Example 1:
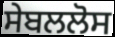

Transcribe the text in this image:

ਸੇਬਲਲੋਸ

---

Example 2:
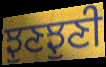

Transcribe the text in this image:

ਝੁਣਝੁਣੀ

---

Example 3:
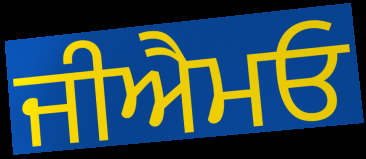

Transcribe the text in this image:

ਜੀਐਮਓ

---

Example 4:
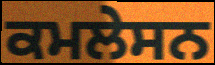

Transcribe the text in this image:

ਕਮਲੇਸਨ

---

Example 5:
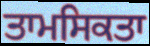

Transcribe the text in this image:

ਤਾਮਸਿਕਤਾ